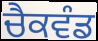
ਚੈਕਵੰਡ